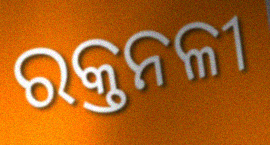
ରକ୍ତନଳୀ